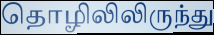
தொழிலிலிருந்து